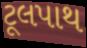
ટૂલપાથ